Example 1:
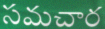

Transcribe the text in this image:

సమచార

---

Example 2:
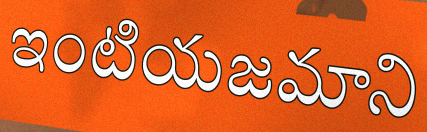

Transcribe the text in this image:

ఇంటియజమాని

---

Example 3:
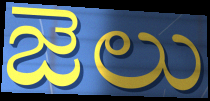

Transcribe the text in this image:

జెలు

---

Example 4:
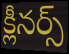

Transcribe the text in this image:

క్లీనర్స్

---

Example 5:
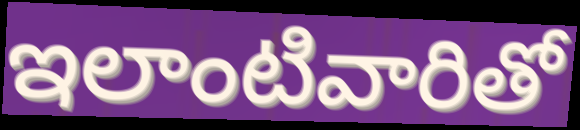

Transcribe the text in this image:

ఇలాంటివారితో